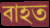
বাহত